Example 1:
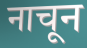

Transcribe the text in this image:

नाचून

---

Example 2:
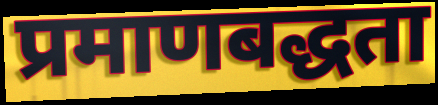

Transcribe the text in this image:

प्रमाणबद्धता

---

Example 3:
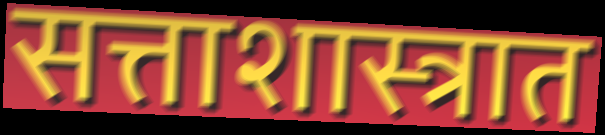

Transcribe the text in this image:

सत्ताशास्त्रात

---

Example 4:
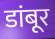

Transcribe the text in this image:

डांबूर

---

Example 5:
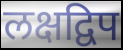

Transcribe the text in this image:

लक्षद्विप